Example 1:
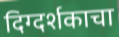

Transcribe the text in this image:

दिग्दर्शकाचा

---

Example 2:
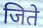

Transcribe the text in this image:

जिते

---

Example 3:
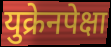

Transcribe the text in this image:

युक्रेनपेक्षा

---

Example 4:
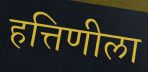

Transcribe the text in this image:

हत्तिणीला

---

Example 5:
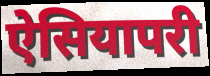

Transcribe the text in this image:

ऐसियापरी